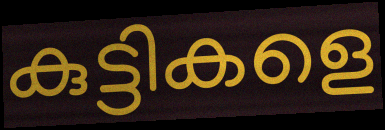
കുട്ടികളെ